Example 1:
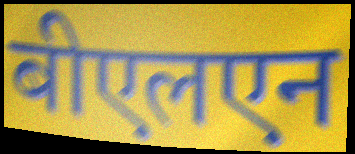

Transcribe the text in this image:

बीएलएन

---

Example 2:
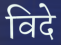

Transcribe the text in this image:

विदे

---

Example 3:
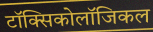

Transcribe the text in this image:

टॉक्सिकोलॉजिकल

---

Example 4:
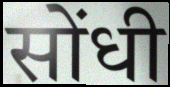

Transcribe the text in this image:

सोंधी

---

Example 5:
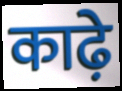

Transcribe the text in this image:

काढ़े